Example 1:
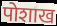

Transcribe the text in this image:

पोशाख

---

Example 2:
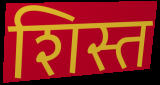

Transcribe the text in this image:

शिस्त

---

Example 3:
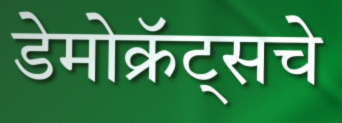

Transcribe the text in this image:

डेमोक्रॅट्सचे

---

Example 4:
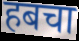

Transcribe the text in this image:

हबचा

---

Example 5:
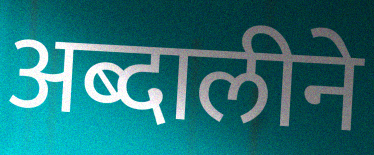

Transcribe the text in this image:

अब्दालीने